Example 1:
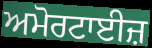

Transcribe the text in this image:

ਅਮੋਰਟਾਈਜ਼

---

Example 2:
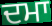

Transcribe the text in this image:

ਦਮਾ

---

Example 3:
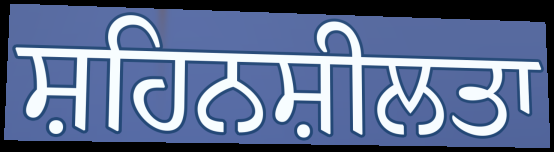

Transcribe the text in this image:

ਸ਼ਹਿਨਸ਼ੀਲਤਾ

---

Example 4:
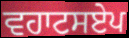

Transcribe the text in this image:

ਵਹਾਟਸਏਪ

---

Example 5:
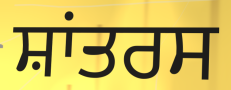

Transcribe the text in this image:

ਸ਼ਾਂਤਰਸ